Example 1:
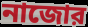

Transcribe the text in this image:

নাজোর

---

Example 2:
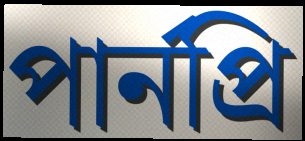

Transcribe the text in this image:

পার্নপ্রি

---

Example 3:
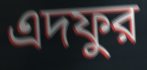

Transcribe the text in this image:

এদফুর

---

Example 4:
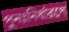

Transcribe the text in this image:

পুনঃনির্ধারণে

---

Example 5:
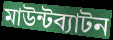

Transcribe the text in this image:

মাউন্টব্যাটন